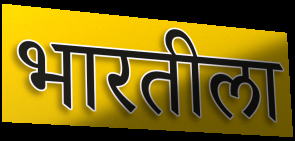
भारतीला